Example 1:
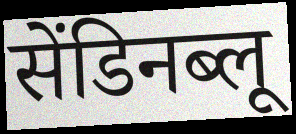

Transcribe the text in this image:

सेंडिनब्लू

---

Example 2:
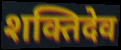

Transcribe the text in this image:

शक्तिदेव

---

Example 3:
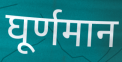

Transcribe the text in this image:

घूर्णमान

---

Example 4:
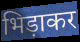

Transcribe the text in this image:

भिड़ाकर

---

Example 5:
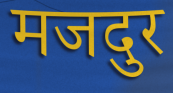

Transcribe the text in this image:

मजदुर